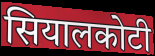
सियालकोटी